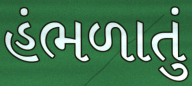
હંભળાતું